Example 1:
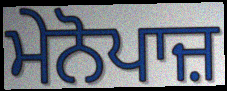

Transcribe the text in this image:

ਮੇਨੋਪਾਜ਼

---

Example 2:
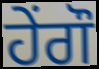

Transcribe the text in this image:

ਹੇਂਗੌ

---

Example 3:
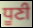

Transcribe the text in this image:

ਧੂਣੀ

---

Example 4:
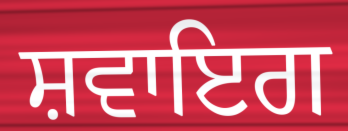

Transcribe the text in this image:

ਸ਼ਵਾਇਗ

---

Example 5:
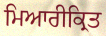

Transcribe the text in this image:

ਮਿਆਰੀਕ੍ਰਿਤ